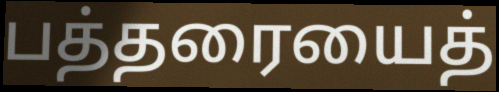
பத்தரையைத்